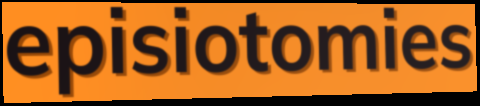
episiotomies